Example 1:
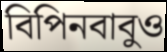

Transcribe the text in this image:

বিপিনবাবুও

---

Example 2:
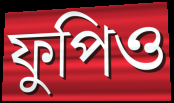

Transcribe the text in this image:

ফুপিও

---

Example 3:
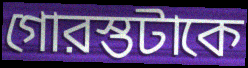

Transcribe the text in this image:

গোরস্তটাকে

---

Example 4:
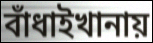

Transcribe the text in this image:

বাঁধাইখানায়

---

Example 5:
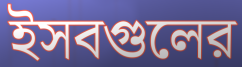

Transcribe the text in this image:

ইসবগুলের